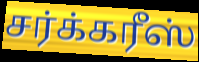
சர்க்கரீஸ்